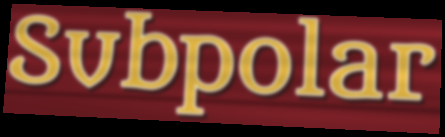
Subpolar